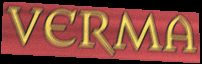
VERMA